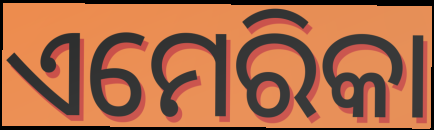
ଏମେରିକା